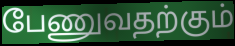
பேணுவதற்கும்